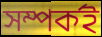
সম্পৰ্কই